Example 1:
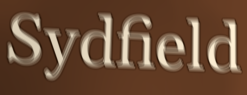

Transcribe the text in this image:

Sydfield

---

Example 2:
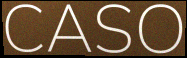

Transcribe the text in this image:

CASO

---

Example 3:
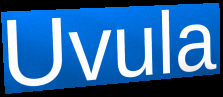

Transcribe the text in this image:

Uvula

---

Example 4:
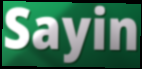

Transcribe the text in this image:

Sayin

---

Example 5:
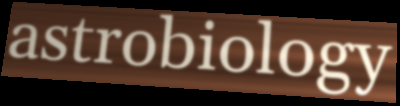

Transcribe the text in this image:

astrobiology